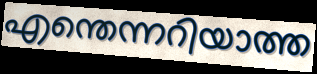
എന്തെന്നറിയാത്ത